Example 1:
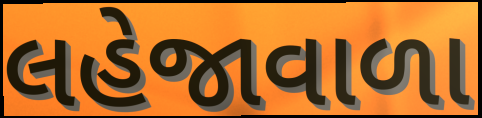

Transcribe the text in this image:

લહેજાવાળા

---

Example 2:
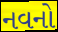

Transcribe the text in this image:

નવનો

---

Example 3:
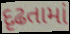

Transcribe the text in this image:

દૃઢતામાં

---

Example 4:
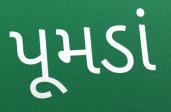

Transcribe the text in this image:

પૂમડાં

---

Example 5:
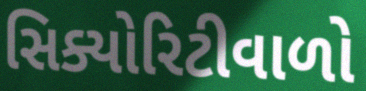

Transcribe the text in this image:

સિક્યોરિટીવાળો